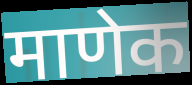
माणेक